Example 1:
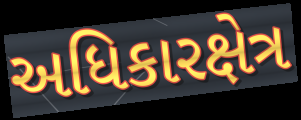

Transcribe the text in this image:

અધિકારક્ષેત્ર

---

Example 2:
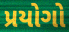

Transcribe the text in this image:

પ્રયોગો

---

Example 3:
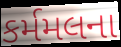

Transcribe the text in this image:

કર્મમલના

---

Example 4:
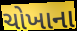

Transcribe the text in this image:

ચોખાના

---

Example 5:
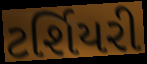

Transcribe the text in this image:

ટર્શિયરી